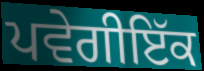
ਪਵੇਗੀਇੱਕ